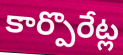
కార్పొరేట్ల